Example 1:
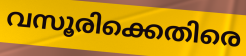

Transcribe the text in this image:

വസൂരിക്കെതിരെ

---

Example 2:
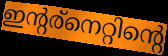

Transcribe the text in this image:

ഇന്റര്നെറ്റിന്റെ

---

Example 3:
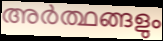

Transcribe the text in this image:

അർത്ഥങ്ങളും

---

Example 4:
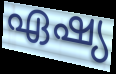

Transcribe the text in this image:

ഏഷ്യ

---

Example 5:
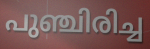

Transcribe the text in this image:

പുഞ്ചിരിച്ച